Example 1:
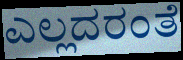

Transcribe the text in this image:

ಎಲ್ಲದರಂತೆ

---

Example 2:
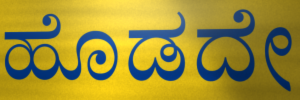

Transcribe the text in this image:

ಹೊಡದೇ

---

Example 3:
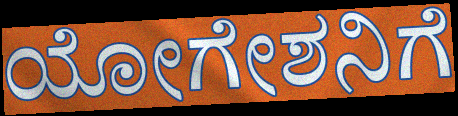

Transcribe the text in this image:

ಯೋಗೇಶನಿಗೆ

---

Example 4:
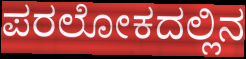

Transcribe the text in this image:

ಪರಲೋಕದಲ್ಲಿನ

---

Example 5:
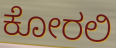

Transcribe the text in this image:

ಕೋರಲಿ